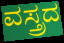
ವಸ್ತ್ರದ